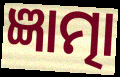
ଜ୍ଞାତ୍ମା